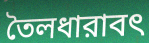
তৈলধারাবৎ